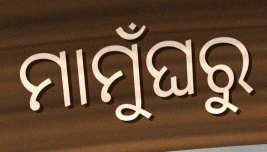
ମାମୁଁଘରୁ